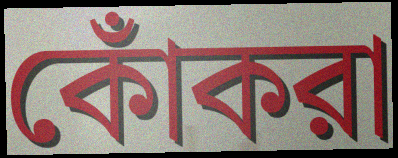
কোঁকরা